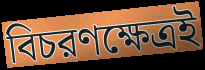
বিচরণক্ষেত্রই